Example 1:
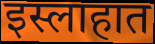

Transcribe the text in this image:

इस्लाहात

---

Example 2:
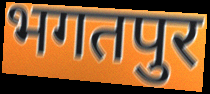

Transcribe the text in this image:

भगतपुर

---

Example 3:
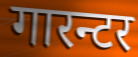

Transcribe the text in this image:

गारन्टर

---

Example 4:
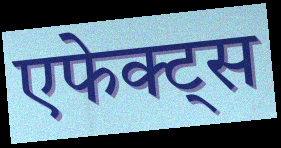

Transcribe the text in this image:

एफेक्ट्स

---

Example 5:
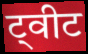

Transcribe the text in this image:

ट्‌वीट